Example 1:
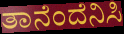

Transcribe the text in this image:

ತಾನೆಂದೆನಿಸಿ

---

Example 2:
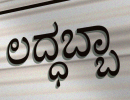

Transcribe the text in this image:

ಲದ್ಧಬ್ಬಾ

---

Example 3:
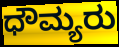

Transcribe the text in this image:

ಧೌಮ್ಯರು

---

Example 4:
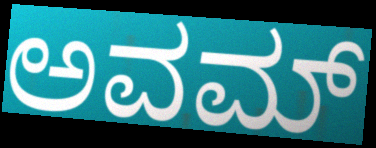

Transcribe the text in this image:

ಅವಮ್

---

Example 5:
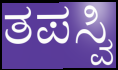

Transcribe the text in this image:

ತಪಸ್ವಿ